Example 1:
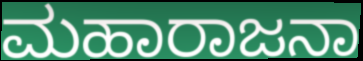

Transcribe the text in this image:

ಮಹಾರಾಜನಾ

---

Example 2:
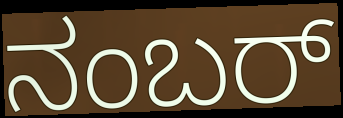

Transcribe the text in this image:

ನಂಬರ್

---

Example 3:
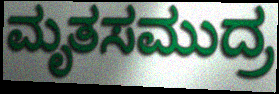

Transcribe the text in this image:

ಮೃತಸಮುದ್ರ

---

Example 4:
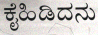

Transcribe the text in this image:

ಕೈಹಿಡಿದನು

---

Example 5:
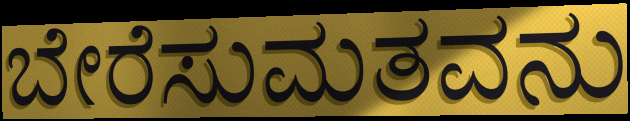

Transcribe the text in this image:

ಬೇರೆಸುಮತವನು